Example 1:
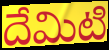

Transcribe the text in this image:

దేమిటి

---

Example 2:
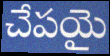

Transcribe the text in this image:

చేపయై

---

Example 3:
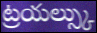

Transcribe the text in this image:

ట్రయల్స్కు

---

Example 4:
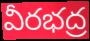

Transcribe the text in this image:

వీరభద్ర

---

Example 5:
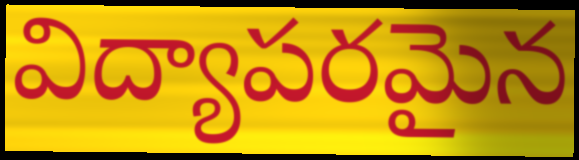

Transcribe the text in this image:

విద్యాపరమైన